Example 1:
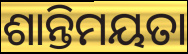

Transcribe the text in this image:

ଶାନ୍ତିମୟତା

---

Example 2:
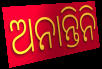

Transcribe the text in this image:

ଅନାନ୍ତିନି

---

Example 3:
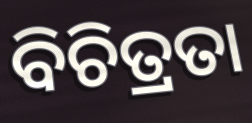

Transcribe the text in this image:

ବିଚିତ୍ରତା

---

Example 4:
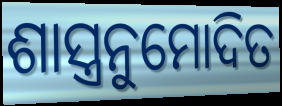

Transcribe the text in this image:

ଶାସ୍ତ୍ରନୁମୋଦିତ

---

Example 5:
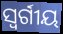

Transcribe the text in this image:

ସ୍ୱର୍ଗୀୟ